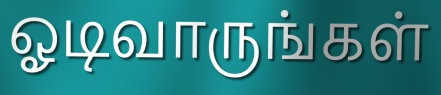
ஓடிவாருங்கள்